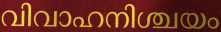
വിവാഹനിശ്ചയം